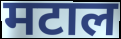
मटाल